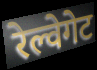
रेल्वेगेट